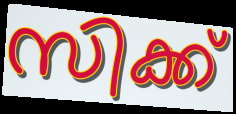
സിക്ക്